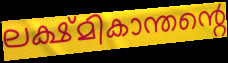
ലക്ഷ്മികാന്തന്റെ